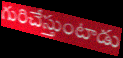
గురిచేస్తుంటాడు